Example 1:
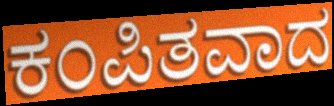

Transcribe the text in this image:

ಕಂಪಿತವಾದ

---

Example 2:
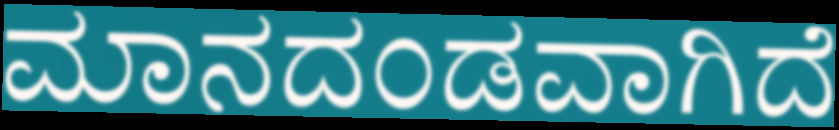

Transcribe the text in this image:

ಮಾನದಂಡವಾಗಿದೆ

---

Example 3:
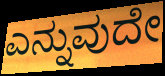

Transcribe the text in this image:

ಎನ್ನುವುದೇ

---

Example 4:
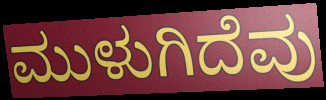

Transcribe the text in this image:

ಮುಳುಗಿದೆವು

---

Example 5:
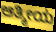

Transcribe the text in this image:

ಆತ್ಮೀಯ